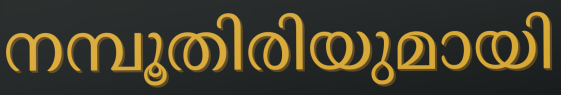
നമ്പൂതിരിയുമായി